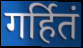
गर्हितं